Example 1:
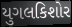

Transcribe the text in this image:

યુગલકિશોર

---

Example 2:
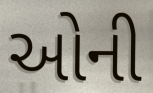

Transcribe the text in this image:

ઓની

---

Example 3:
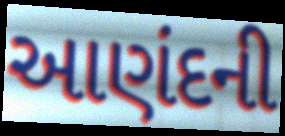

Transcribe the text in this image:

આણંદની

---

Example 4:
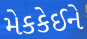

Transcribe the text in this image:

મેકકેઈને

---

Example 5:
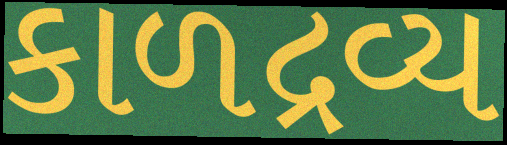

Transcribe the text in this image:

કાળદ્રવ્ય